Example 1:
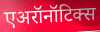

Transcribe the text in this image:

एअरॉनॉटिक्स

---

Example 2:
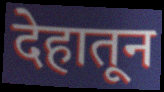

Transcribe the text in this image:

देहातून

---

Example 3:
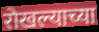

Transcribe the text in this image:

रोखल्याच्या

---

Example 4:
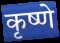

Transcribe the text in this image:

कृष्णे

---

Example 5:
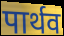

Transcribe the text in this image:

पार्थव